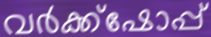
വർക്ക്ഷോപ്പ്